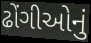
ઢોંગીઓનું